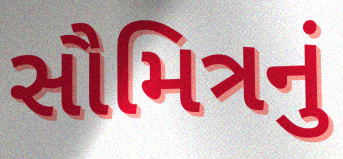
સૌમિત્રનું